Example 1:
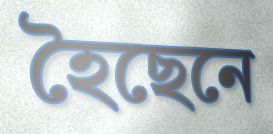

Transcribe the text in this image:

হৈছেনে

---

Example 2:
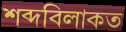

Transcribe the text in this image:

শব্দবিলাকত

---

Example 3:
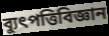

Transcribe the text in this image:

ব্যুৎপত্তিবিজ্ঞান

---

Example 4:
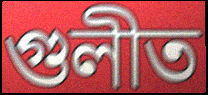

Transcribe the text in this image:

গুলীত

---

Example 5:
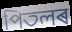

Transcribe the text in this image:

পিতলৰ